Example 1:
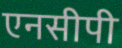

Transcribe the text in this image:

एनसीपी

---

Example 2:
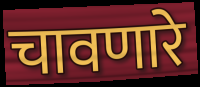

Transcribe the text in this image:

चावणारे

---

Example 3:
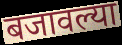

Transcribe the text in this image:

बजावल्या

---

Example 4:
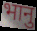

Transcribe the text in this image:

भानु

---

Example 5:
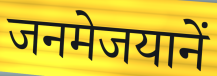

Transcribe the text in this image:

जनमेजयानें